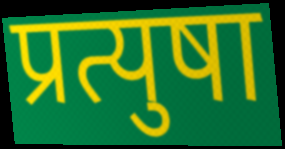
प्रत्युषा